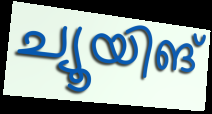
ച്യൂയിങ്